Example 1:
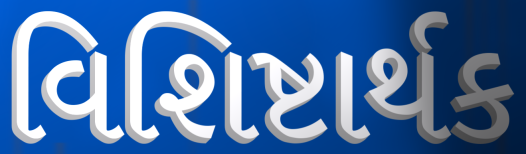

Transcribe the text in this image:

વિશિષ્ટાર્થક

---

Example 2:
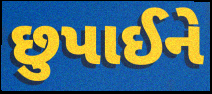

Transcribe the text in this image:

છુપાઈને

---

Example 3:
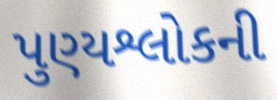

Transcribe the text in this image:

પુણ્યશ્લોકની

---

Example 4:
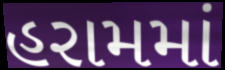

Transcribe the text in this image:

હરામમાં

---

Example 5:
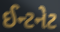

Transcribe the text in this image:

ઈન્ટનેટ